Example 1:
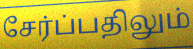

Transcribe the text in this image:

சேர்ப்பதிலும்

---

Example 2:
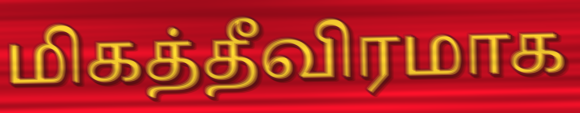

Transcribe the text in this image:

மிகத்தீவிரமாக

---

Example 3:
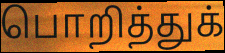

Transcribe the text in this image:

பொறித்துக்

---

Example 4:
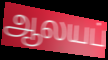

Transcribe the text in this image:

ஆலயப்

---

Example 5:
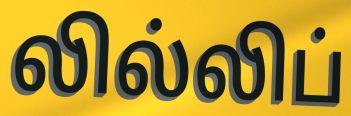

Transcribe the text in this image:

லில்லிப்